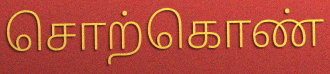
சொற்கொண்